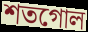
শতগোল